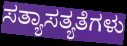
ಸತ್ಯಾಸತ್ಯತೆಗಳು